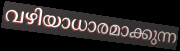
വഴിയാധാരമാക്കുന്ന